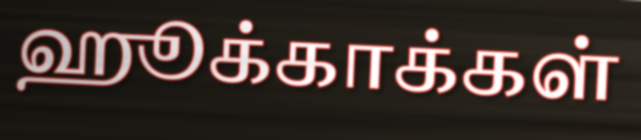
ஹூக்காக்கள்